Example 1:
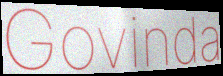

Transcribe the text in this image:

Govinda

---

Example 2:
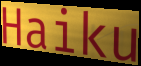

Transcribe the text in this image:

Haiku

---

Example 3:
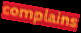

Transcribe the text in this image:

complains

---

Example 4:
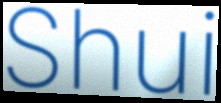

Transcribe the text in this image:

Shui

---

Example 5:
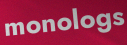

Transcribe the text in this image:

monologs